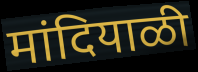
मांदियाळी